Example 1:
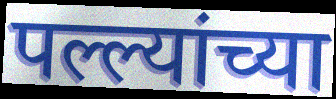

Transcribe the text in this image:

पल्ल्यांच्या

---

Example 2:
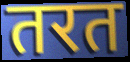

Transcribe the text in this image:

तरत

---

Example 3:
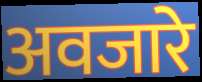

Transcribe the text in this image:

अवजारे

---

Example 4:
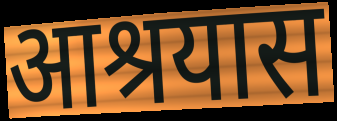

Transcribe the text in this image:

आश्रयास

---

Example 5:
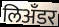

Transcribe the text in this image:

लिअँडर